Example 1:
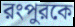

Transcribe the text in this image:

রংপুরকে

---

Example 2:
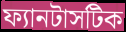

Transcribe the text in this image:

ফ্যানটাসটিক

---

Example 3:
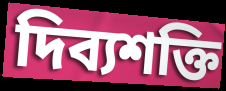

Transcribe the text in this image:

দিব্যশক্তি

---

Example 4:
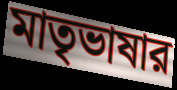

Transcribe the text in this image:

মাতৃভাষার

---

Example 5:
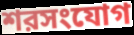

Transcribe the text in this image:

শরসংযোগ